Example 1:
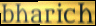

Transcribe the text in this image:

bharich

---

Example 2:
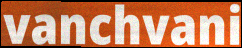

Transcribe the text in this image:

vanchvani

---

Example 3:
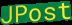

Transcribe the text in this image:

JPost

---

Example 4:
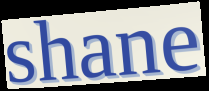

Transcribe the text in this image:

shane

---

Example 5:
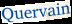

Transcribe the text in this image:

Quervain